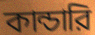
কান্ডারি